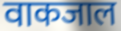
वाकजाल